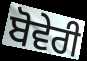
ਬੋਵੇਰੀ